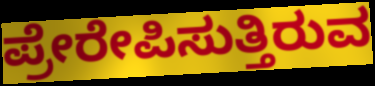
ಪ್ರೇರೇಪಿಸುತ್ತಿರುವ